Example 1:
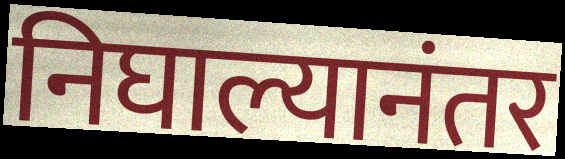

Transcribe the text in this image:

निघाल्यानंतर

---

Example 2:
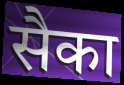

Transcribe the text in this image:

सैका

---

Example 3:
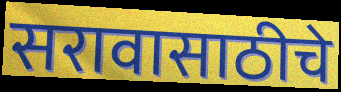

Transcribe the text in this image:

सरावासाठीचे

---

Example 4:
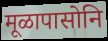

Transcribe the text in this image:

मूळापासोनि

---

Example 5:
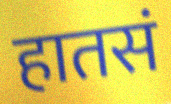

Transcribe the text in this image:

हातसं